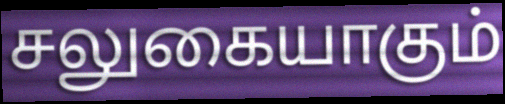
சலுகையாகும்